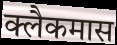
क्लैकमास